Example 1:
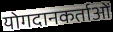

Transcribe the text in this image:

योगदानकर्ताओं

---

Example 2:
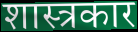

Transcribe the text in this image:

शास्त्रकार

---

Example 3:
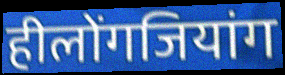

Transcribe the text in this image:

हीलोंगजियांग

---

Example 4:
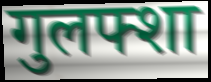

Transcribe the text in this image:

गुलफ्शा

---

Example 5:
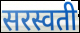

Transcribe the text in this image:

सरस्वती